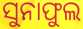
ସୁନାଫୁଲ